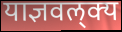
याज्ञवल्क्य